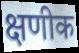
क्षणीक